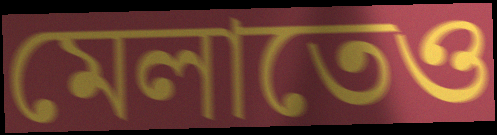
মেলাতেও